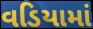
વડિયામાં